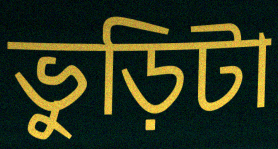
ভুড়িটা